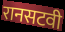
रानसटवी